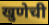
खुणेची